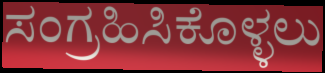
ಸಂಗ್ರಹಿಸಿಕೊಳ್ಳಲು